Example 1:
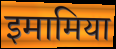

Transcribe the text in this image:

इमामिया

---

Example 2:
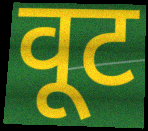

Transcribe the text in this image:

वूट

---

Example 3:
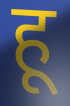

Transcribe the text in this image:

हू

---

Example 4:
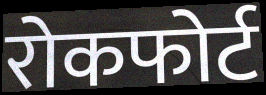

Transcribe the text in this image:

रोकफोर्ट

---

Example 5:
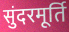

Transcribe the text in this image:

सुंदरमूर्ति